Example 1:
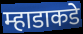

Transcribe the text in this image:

म्हाडाकडे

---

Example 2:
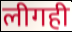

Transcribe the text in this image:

लीगही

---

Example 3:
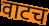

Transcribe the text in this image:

वाटच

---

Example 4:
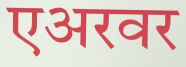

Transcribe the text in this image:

एअरवर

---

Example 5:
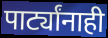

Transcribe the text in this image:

पार्ट्यांनाही